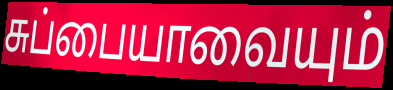
சுப்பையாவையும்